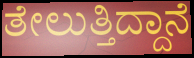
ತೇಲುತ್ತಿದ್ದಾನೆ